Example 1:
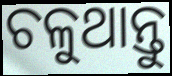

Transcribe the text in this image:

ଚଳୁଥାନ୍ତୁ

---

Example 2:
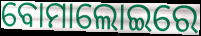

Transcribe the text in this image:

ବୋମାଲୋଇରେ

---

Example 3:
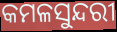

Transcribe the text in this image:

କମଳସୁନ୍ଦରୀ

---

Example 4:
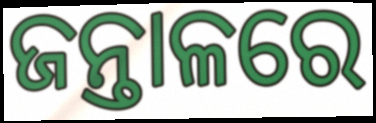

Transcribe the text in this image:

ଜନ୍ତାଳରେ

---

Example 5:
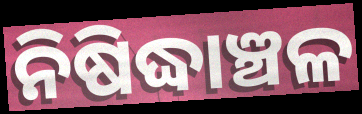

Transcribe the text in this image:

ନିଷିଦ୍ଧାଞ୍ଚଳ